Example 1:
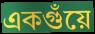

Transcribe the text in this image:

একগুঁয়ে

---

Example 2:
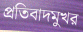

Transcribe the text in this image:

প্রতিবাদমুখর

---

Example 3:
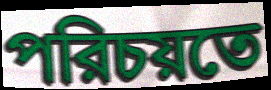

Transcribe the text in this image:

পরিচয়তে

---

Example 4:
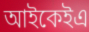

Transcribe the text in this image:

আইকেইএ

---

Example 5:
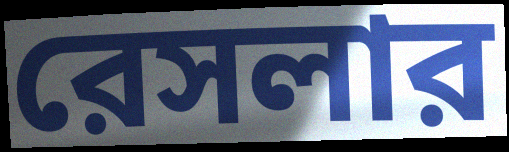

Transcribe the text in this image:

রেসলার